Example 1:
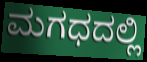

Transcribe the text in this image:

ಮಗಧದಲ್ಲಿ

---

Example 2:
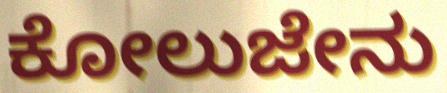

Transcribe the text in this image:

ಕೋಲುಜೇನು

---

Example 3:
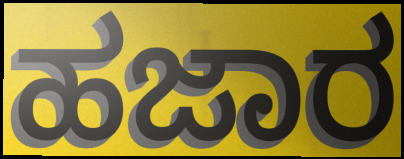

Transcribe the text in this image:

ಹಜಾರ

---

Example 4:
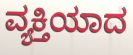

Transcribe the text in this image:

ವ್ಯಕ್ತಿಯಾದ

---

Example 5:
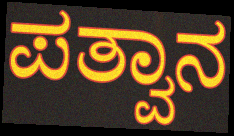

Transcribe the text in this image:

ಪತ್ವಾನ